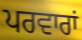
ਪਰਵਾਰਾਂ